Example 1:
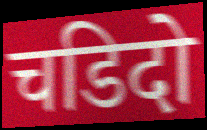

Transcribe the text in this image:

चडिदो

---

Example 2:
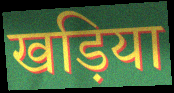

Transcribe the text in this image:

खड़िया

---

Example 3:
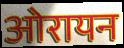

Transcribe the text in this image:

ओरायन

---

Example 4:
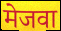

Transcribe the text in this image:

मेजवा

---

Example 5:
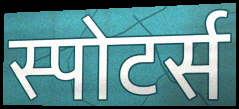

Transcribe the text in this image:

स्पोटर्स